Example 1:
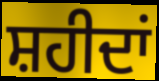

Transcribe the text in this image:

ਸ਼ਹੀਦਾਂ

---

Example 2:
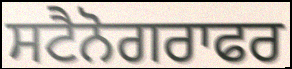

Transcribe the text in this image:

ਸਟੈਨੋਗਰਾਫਰ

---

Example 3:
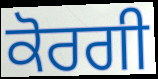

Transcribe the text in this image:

ਕੋਰਗੀ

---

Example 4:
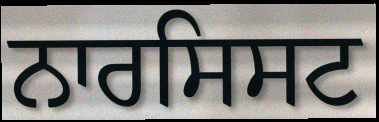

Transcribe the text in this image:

ਨਾਰਸਿਸਟ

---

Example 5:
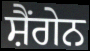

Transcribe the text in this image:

ਸ਼ੈਂਗੇਨ